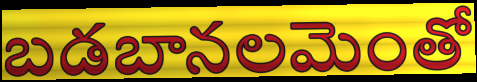
బడబానలమెంతో